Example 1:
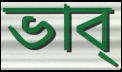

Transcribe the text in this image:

ভাব্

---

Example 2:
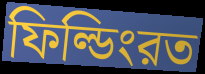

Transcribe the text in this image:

ফিল্ডিংরত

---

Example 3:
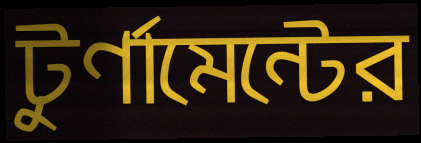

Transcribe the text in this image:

টুর্ণামেন্টের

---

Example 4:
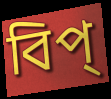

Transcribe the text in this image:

বিপ্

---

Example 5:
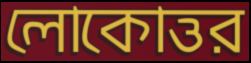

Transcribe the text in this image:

লোকোত্তর